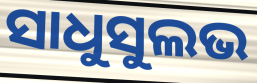
ସାଧୁସୁଲଭ